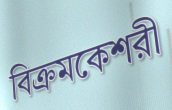
বিক্রমকেশরী